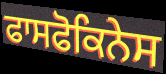
ਫਾਸਫੋਕਿਨੇਸ